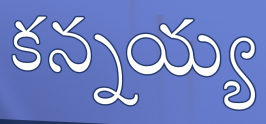
కన్నయ్య